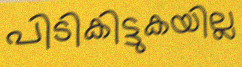
പിടികിട്ടുകയില്ല